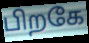
பிறகே